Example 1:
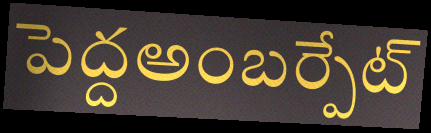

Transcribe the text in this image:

పెద్దఅంబర్పేట్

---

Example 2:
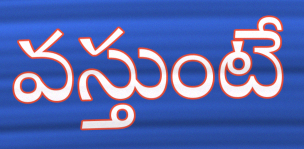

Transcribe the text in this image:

వస్తుంటే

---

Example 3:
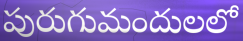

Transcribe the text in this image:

పురుగుమందులలో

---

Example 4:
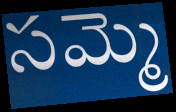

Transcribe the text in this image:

సమ్మె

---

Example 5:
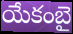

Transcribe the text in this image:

యేకంబై